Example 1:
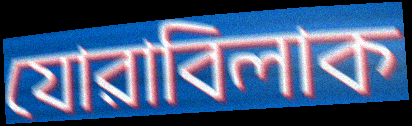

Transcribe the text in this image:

যোৱাবিলাক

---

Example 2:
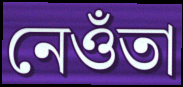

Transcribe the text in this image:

নেওঁতা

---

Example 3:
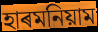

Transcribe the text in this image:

হাৰমনিয়াম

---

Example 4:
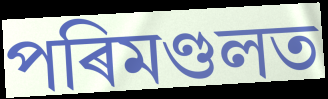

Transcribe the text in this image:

পৰিমণ্ডলত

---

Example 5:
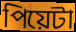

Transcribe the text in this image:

পিয়েটা